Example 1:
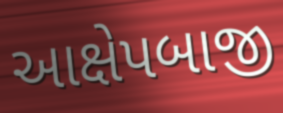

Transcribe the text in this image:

આક્ષેપબાજી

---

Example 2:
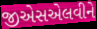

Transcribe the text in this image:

જીએસએલવીને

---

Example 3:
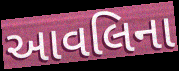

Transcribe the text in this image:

આવલિના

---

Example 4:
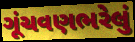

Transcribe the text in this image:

ગૂંચવણભરેલું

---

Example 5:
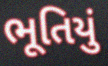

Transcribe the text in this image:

ભૂતિયું